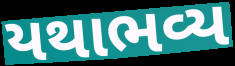
યથાભવ્ય